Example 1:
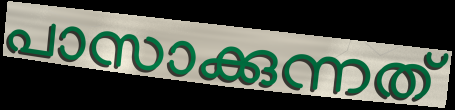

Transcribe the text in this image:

പാസാക്കുന്നത്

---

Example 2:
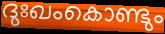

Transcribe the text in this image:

ദുഃഖംകൊണ്ടും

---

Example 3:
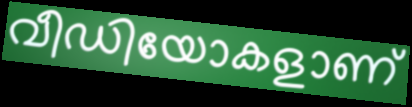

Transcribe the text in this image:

വീഡിയോകളാണ്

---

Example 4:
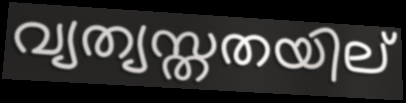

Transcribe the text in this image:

വ്യത്യസ്തതയില്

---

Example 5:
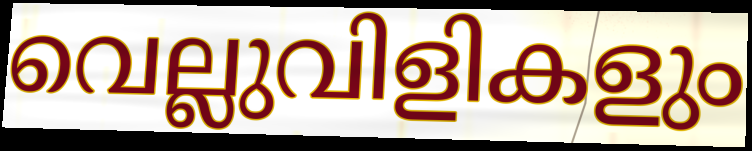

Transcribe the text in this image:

വെല്ലുവിളികളും